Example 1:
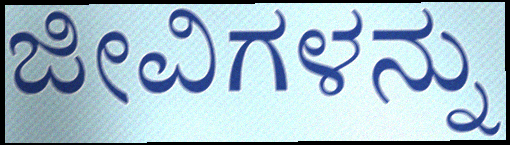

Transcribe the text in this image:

ಜೀವಿಗಳನ್ನು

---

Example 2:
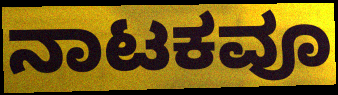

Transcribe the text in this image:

ನಾಟಕವೂ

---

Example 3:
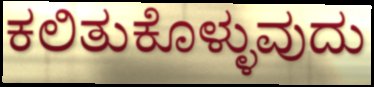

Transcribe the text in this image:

ಕಲಿತುಕೊಳ್ಳುವುದು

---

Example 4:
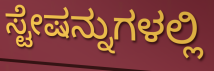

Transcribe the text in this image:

ಸ್ಟೇಷನ್ನುಗಳಲ್ಲಿ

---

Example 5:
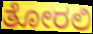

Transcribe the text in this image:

ತೋರಲಿ